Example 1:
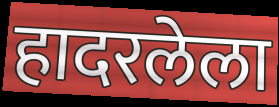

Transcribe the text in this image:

हादरलेला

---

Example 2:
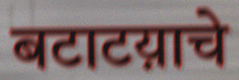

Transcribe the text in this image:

बटाटय़ाचे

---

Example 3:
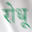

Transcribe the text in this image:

रोधू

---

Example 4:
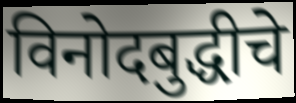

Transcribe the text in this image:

विनोदबुद्धीचे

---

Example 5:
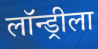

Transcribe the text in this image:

लॉन्ड्रीला